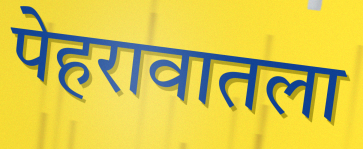
पेहरावातला